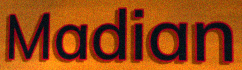
Madian